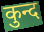
कुन्द